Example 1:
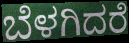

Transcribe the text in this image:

ಬೆಳಗಿದರೆ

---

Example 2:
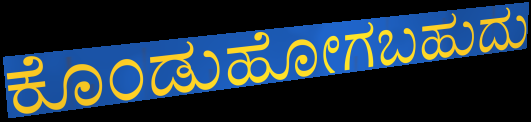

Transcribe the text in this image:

ಕೊಂಡುಹೋಗಬಹುದು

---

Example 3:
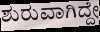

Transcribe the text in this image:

ಶುರುವಾಗಿದ್ದೇ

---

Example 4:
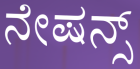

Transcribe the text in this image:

ನೇಷನ್ಸ್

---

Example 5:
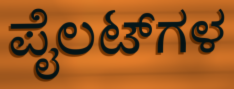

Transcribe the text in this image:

ಪೈಲಟ್‌ಗಳ